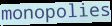
monopolies